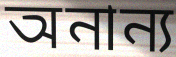
অনান্য